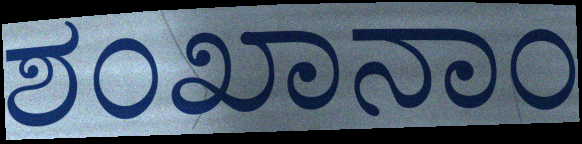
ಶಂಖಾನಾಂ